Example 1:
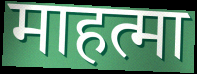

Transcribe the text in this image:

माहत्मा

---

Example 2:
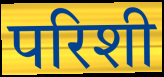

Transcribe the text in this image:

परिशी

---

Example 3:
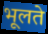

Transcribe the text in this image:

भूलते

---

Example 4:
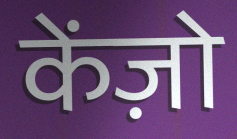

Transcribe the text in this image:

केंज़ो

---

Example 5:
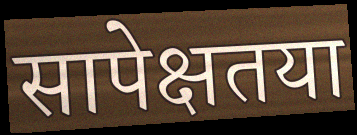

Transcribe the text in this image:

सापेक्षतया